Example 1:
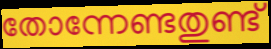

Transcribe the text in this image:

തോന്നേണ്ടതുണ്ട്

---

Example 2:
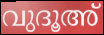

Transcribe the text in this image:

വുദൂഅ്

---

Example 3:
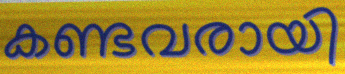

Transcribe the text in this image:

കണ്ടവരായി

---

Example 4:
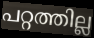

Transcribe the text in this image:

പറ്റത്തില്ല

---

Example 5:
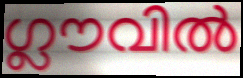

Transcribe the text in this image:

ഗ്ലൗവിൽ